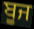
ਬੂਜ